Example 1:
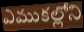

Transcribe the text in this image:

ఎముకల్లోని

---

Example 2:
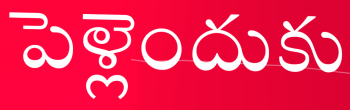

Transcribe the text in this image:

పెళ్లెందుకు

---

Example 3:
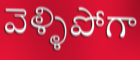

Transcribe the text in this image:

వెళ్ళిపోగా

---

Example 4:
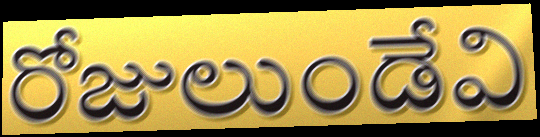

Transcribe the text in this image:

రోజులుండేవి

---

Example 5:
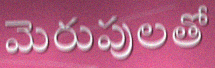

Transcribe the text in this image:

మెరుపులతో